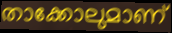
താക്കോലുമാണ്